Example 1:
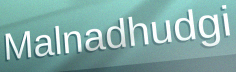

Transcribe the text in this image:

Malnadhudgi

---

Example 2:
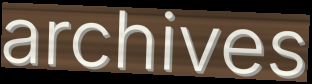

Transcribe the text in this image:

archives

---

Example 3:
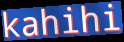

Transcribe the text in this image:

kahihi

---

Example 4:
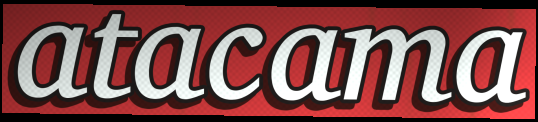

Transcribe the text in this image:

atacama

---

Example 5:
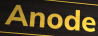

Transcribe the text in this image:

Anode